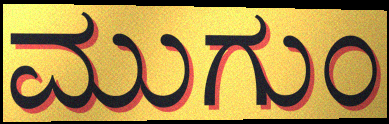
ಮುಗುಂ